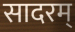
सादरम्